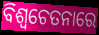
ବିଶ୍ୱଚେତନାରେ